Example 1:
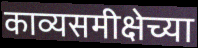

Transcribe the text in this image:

काव्यसमीक्षेच्या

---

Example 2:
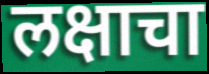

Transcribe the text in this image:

लक्षाचा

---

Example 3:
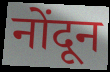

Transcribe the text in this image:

नोंदून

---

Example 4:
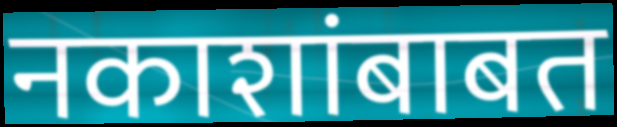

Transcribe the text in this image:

नकाशांबाबत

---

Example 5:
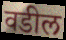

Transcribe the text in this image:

वडील